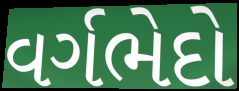
વર્ગભેદો